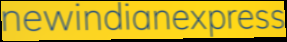
newindianexpress